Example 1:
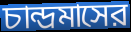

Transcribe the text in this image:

চান্দ্রমাসের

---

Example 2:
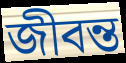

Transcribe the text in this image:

জীবন্ত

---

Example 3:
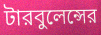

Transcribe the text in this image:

টারবুলেন্সের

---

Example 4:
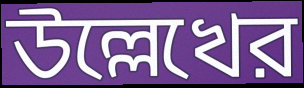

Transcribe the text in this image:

উল্লেখের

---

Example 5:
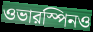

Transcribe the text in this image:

ওভারস্পিনও